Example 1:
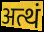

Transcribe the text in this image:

अत्थं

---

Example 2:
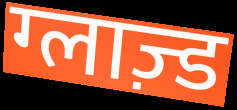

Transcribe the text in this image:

ग्लाज़्ड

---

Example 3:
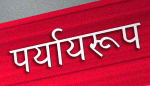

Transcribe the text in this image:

पर्यायरूप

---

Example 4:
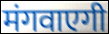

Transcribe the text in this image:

मंगवाएगी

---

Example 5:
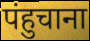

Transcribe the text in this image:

पंहुचाना